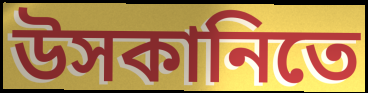
উসকানিতে